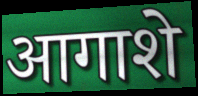
आगाशे